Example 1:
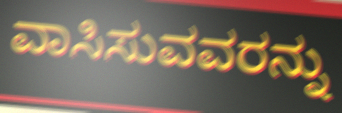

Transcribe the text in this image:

ವಾಸಿಸುವವರನ್ನು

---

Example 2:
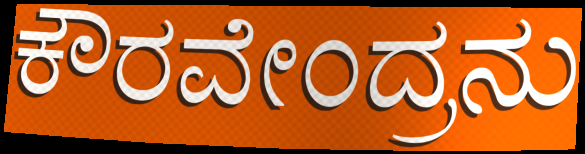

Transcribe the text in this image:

ಕೌರವೇಂದ್ರನು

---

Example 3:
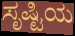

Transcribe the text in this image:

ಸೃಷ್ಟಿಯ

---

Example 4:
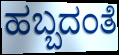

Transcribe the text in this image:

ಹಬ್ಬದಂತೆ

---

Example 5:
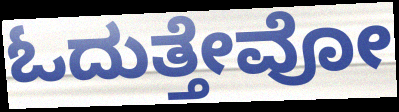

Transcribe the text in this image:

ಓದುತ್ತೇವೋ